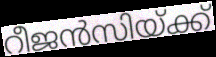
റീജൻസിയ്ക്ക്